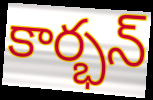
కార్భన్